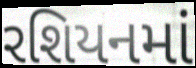
રશિયનમાં